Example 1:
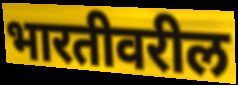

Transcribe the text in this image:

भारतीवरील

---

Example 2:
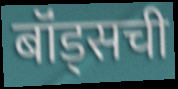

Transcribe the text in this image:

बॉंड्सची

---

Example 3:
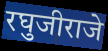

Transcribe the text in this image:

रघुजीराजे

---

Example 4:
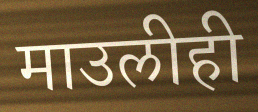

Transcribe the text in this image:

माउलीही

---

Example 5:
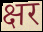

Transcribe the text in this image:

क्षर